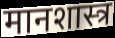
मानशास्त्र